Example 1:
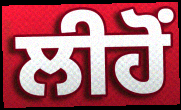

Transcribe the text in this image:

ਲੀਹੋਂ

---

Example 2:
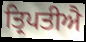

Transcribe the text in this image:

ਤ੍ਰਿਪਤੀਐ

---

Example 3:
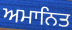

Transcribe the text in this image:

ਅਮਾਨਿਤ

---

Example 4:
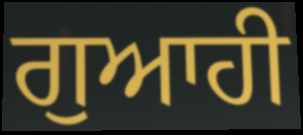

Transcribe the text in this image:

ਗੁਆਹੀ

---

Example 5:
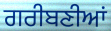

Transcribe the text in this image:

ਗਰੀਬਣੀਆਂ